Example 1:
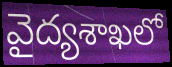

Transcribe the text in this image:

వైద్యశాఖలో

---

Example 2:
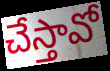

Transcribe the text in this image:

చేస్తావో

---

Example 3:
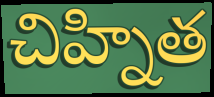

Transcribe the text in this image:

చిహ్నిత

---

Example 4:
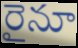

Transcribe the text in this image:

రైనూ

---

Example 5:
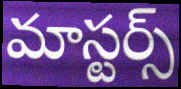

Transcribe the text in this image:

మాస్టర్స్